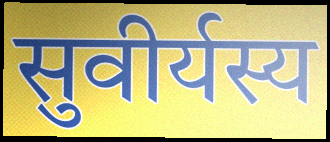
सुवीर्यस्य